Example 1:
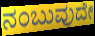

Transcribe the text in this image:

ನಂಬುವುದೇ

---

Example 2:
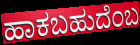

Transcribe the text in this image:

ಹಾಕಬಹುದೆಂಬ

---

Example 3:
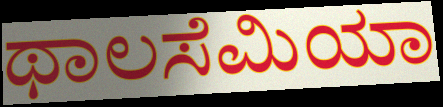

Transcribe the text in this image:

ಥಾಲಸೆಮಿಯಾ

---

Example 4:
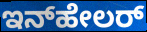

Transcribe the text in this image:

ಇನ್‌ಹೇಲರ್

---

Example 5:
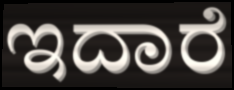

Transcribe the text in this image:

ಇದಾರೆ